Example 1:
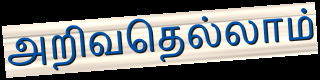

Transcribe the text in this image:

அறிவதெல்லாம்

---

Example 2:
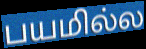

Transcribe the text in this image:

பயமில்ல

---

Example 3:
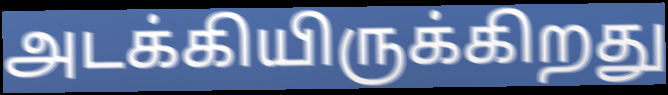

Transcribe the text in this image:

அடக்கியிருக்கிறது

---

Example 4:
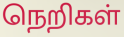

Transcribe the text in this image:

நெறிகள்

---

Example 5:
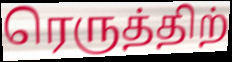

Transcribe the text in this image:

ரெருத்திற்